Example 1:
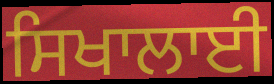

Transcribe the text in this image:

ਸਿਖਾਲਾਈ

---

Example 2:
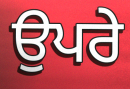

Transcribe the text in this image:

ਉਪਰੇ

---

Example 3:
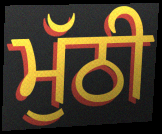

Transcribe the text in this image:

ਮੁੱਠੀ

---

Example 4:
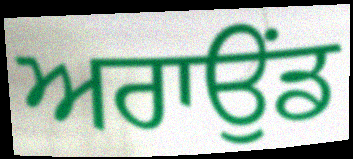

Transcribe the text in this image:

ਅਰਾਉਂਡ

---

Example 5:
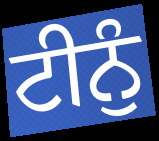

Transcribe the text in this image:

ਟੀਨੁੰ